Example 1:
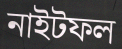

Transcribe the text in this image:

নাইটফল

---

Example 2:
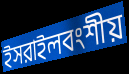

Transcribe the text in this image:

ইসরাইলবংশীয়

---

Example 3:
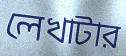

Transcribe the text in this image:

লেখাটার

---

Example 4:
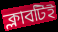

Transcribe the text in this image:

ক্লাবটিই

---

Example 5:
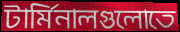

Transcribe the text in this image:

টার্মিনালগুলোতে